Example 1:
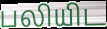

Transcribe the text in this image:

பலியிட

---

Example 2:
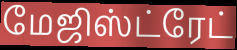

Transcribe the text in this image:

மேஜிஸ்ட்ரேட்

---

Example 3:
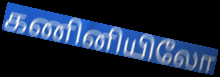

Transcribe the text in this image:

கணினியிலோ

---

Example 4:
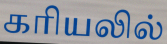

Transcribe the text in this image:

கரியலில்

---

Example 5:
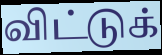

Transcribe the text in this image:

விட்டுக்